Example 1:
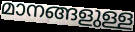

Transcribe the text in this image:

മാനങ്ങളുള്ള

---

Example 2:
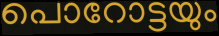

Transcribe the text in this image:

പൊറോട്ടയും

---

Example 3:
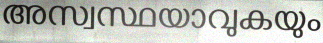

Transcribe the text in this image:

അസ്വസ്ഥയാവുകയും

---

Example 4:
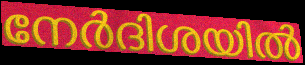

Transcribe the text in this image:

നേർദിശയിൽ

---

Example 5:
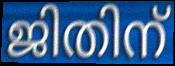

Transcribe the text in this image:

ജിതിന്